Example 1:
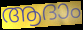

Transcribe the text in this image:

ആദാം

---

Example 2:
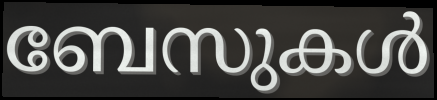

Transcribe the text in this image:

ബേസുകൾ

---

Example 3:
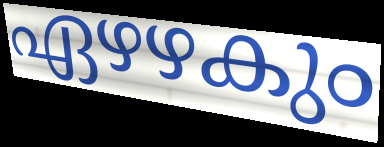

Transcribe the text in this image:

ഏഴഴകും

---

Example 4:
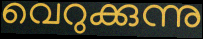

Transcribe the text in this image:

വെറുക്കുന്നു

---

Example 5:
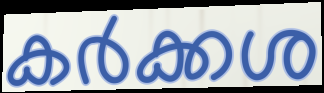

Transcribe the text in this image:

കർക്കശ